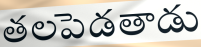
తలపెడతాడు